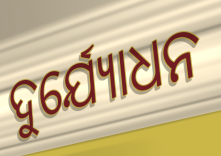
ଦୁର୍ଯ୍ୟୋଧନ